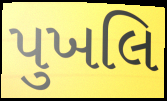
પુખલિ